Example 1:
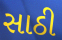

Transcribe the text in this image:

સાઠી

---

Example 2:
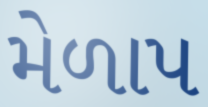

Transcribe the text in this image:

મેળાપ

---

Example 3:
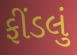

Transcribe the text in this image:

ફીંડલું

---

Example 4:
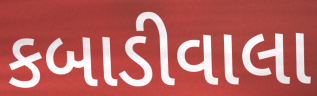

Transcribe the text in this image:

કબાડીવાલા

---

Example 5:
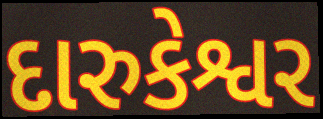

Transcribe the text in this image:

દારુકેશ્વર